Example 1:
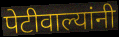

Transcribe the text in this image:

पेटीवाल्यांनी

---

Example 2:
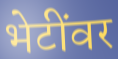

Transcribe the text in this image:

भेटींवर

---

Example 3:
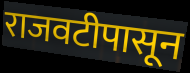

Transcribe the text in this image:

राजवटीपासून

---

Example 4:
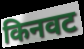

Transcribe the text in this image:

किनवट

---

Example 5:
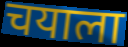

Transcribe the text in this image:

चयाला